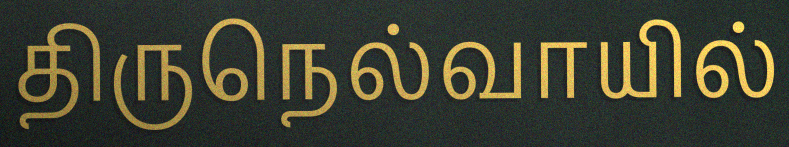
திருநெல்வாயில்